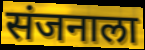
संजनाला